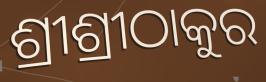
ଶ୍ରୀଶ୍ରୀଠାକୁର